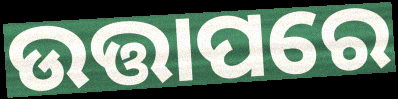
ଉତ୍ତାପରେ